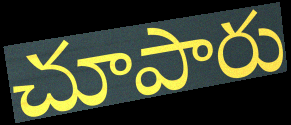
చూపారు